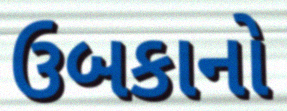
ઉબકાનો